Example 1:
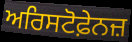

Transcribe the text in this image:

ਅਰਿਸਟੋਫ਼ੇਨਜ਼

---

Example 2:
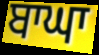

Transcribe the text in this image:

ਬਾਘਾ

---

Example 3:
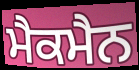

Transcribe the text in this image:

ਮੈਕਮੈਨ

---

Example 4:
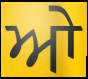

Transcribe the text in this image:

ਆੇ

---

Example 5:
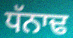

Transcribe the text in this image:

ਧੱਨਾਢ